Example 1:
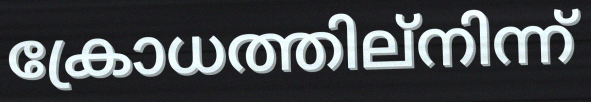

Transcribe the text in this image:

ക്രോധത്തില്നിന്ന്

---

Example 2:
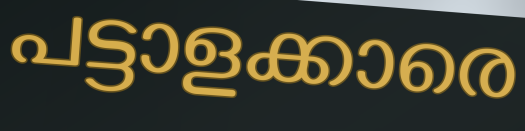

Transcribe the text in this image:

പട്ടാളക്കാരെ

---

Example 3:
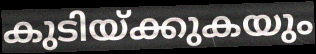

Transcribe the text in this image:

കുടിയ്ക്കുകയും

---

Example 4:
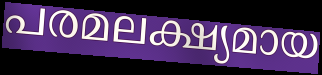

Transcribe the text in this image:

പരമലക്ഷ്യമായ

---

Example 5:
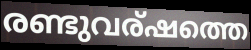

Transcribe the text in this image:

രണ്ടുവര്ഷത്തെ